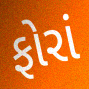
ફોરાં